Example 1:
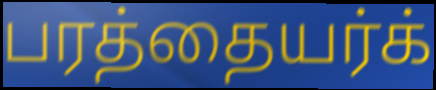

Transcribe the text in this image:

பரத்தையர்க்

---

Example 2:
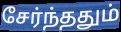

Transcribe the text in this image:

சேர்ந்ததும்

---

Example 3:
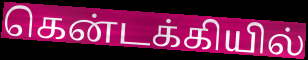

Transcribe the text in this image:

கென்டக்கியில்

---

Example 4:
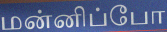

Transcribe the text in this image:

மன்னிப்போ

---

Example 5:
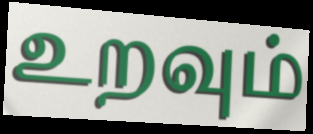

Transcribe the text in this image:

உறவும்